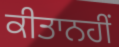
ਕੀਤਾਨਹੀਂ